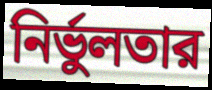
নির্ভুলতার